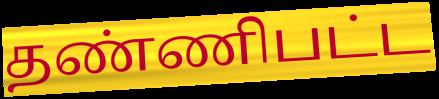
தண்ணிபட்ட